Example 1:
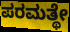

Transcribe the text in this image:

ಪರಮತ್ಥೇ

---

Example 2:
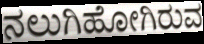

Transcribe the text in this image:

ನಲುಗಿಹೋಗಿರುವ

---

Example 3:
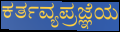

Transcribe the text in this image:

ಕರ್ತವ್ಯಪ್ರಜ್ಞೆಯ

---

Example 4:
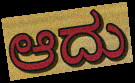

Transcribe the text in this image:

ಆದು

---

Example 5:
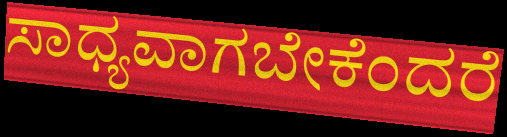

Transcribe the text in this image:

ಸಾಧ್ಯವಾಗಬೇಕೆಂದರೆ